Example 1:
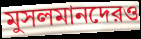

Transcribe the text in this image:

মুসলমানদেরও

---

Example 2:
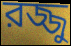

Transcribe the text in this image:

রজ্জু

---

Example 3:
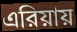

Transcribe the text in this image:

এরিয়ায়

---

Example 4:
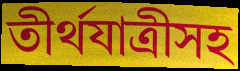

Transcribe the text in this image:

তীর্থযাত্রীসহ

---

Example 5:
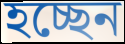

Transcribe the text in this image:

হচ্ছেন